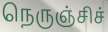
நெருஞ்சிச்